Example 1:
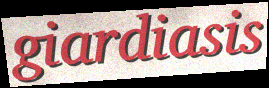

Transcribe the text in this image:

giardiasis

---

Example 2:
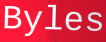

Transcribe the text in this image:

Byles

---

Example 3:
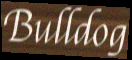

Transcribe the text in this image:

Bulldog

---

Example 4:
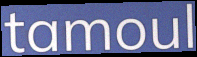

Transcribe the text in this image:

tamoul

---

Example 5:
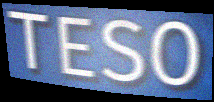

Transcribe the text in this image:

TESO